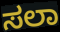
ಸಲಾ